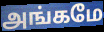
அங்கமே